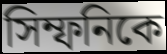
সিম্ফনিকে